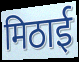
मिठाई